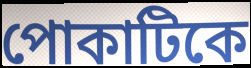
পোকাটিকে